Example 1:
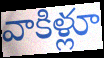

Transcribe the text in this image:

వాకిళ్లూ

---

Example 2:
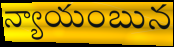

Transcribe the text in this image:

న్యాయంబున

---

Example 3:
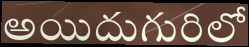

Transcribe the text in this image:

అయిదుగురిలో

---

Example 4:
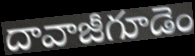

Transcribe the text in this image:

దావాజీగూడెం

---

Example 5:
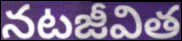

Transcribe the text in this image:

నటజీవిత